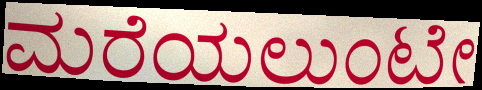
ಮರೆಯಲುಂಟೇ